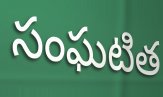
సంఘటిత